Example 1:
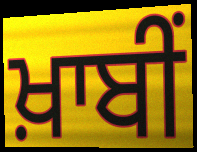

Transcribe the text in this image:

ਖ਼ਾਬੀਂ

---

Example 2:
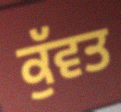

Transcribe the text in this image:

ਕੁੱਵਤ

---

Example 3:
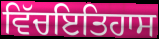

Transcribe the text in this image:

ਵਿੱਚਇਤਿਹਾਸ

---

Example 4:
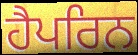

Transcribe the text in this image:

ਹੈਪਰਿਨ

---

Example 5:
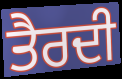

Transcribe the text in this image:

ਤੈਰਦੀ